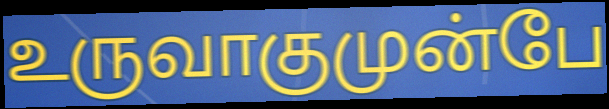
உருவாகுமுன்பே